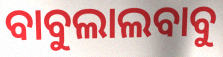
ବାବୁଲାଲବାବୁ